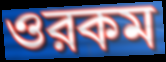
ওরকম